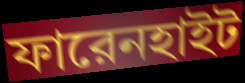
ফারেনহাইট